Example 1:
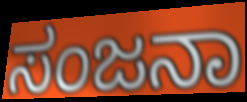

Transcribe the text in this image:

ಸಂಜನಾ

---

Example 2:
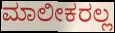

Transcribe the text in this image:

ಮಾಲೀಕರಲ್ಲ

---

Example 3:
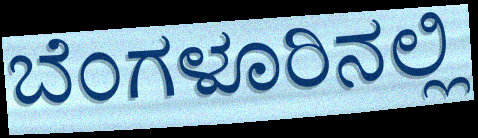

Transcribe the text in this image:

ಬೆಂಗಳೂರಿನಲ್ಲಿ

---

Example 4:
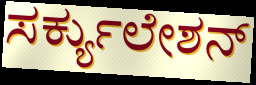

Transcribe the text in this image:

ಸರ್ಕ್ಯುಲೇಶನ್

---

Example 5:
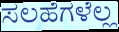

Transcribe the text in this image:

ಸಲಹೆಗಳೆಲ್ಲ